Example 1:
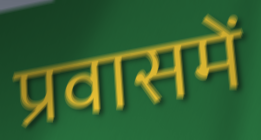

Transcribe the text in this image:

प्रवासमें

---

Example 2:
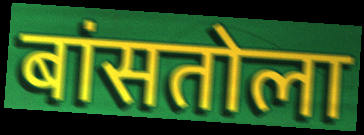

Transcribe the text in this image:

बांसतोला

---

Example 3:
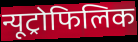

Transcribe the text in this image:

न्यूट्रोफिलिक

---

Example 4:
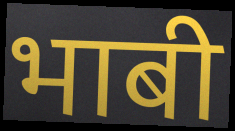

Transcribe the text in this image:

भाबी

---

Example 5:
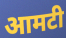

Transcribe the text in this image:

आमटी